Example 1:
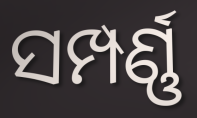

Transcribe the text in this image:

ସମ୍ପର୍ଣ୍ଣ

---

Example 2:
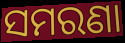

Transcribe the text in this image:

ସମରଣା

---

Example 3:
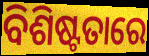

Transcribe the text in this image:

ବିଶିଷ୍ଟତାରେ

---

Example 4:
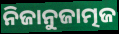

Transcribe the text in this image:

ନିଜାନୁଜାତ୍ମଜ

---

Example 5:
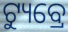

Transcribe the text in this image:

ଟ୍ୟୁବ୍ରେ